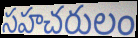
సహచరులం